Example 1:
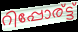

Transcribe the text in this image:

റിപ്പോര്ട്ട്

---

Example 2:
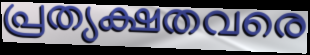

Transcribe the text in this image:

പ്രത്യക്ഷതവരെ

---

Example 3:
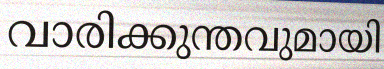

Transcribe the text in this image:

വാരിക്കുന്തവുമായി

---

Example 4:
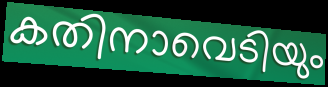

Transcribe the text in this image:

കതിനാവെടിയും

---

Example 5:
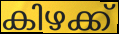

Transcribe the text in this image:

കിഴക്ക്